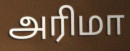
அரிமா